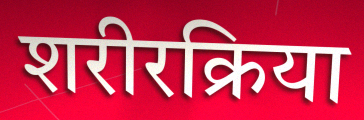
शरीरक्रिया